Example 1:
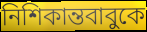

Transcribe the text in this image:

নিশিকান্তবাবুকে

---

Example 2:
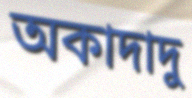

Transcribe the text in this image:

অকাদাদু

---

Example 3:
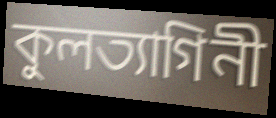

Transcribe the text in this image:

কুলত্যাগিনী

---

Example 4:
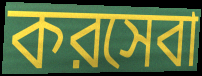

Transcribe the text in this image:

করসেবা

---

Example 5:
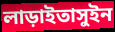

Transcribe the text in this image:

লাড়াইতাসুইন